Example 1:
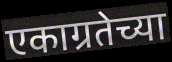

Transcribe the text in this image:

एकाग्रतेच्या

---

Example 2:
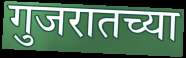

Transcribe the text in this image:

गुजरातच्या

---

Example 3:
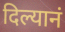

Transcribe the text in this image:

दिल्यानं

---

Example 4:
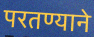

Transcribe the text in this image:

परतण्याने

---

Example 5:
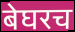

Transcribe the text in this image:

बेघरच